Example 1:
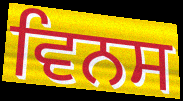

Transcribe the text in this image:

ਵਿਨਸ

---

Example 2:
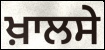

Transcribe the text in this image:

ਖ਼ਾਲਸੇ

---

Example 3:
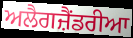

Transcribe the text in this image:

ਅਲੈਗਜ਼ੈਂਡਰੀਆ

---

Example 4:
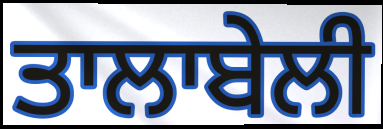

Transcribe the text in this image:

ਤਾਲਾਬੇਲੀ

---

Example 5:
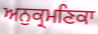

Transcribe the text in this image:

ਅਨੁਕ੍ਰਮਣਿਕਾ